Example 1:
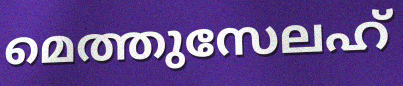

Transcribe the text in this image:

മെത്തുസേലഹ്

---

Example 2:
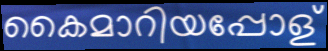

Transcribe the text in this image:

കൈമാറിയപ്പോള്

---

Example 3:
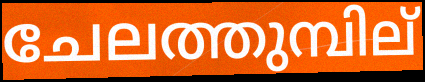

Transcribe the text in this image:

ചേലത്തുമ്പില്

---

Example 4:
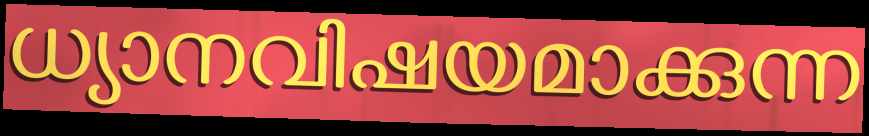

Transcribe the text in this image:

ധ്യാനവിഷയമാക്കുന്ന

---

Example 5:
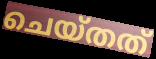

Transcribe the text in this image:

ചെയ്തത്